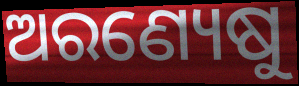
ଅରଣ୍ୟେଷୁ